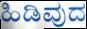
ಹಿಡಿವುದ